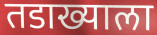
तडाख्याला